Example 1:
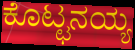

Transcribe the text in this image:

ಕೊಟ್ಟನಯ್ಯ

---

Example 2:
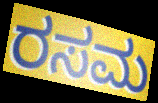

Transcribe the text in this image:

ರಸಮ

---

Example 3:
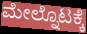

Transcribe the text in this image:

ಮೇಲ್ನೊಟಕ್ಕೆ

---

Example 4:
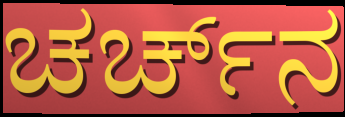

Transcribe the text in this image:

ಚರ್ಚ್‌ನ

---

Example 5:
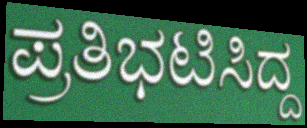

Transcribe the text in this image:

ಪ್ರತಿಭಟಿಸಿದ್ದ